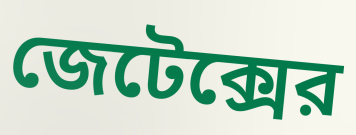
জেটেক্সের